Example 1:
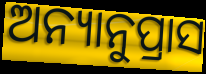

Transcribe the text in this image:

ଅନ୍ୟାନୁପ୍ରାସ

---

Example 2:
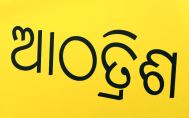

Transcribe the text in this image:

ଆଠତ୍ରିଶ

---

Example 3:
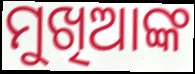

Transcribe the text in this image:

ମୁଖିଆଙ୍କ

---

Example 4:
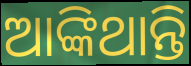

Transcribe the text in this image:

ଆଙ୍କିଥାନ୍ତି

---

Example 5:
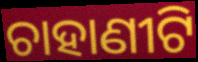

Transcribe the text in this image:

ଚାହାଣୀଟି